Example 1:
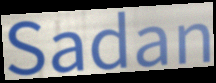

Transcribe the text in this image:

Sadan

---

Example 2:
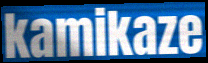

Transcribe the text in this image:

kamikaze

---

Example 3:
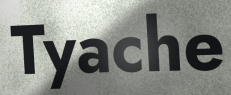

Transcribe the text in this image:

Tyache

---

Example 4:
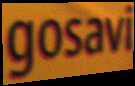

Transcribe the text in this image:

gosavi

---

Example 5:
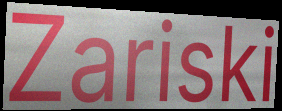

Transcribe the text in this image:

Zariski